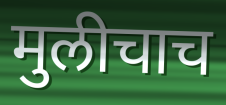
मुलीचाच